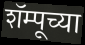
शॅम्पूच्या